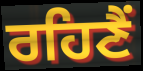
ਰਹਿਣੈਂ